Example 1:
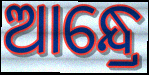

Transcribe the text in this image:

ଆନ୍ଧ୍ରେ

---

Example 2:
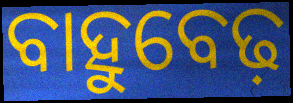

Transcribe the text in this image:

ବାହୁବେଢ଼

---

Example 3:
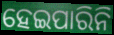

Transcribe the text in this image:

ହେଇପାରିନି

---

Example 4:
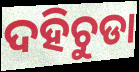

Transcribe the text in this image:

ଦହିଚୁଡା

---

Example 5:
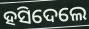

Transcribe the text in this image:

ହସିଦେଲେ